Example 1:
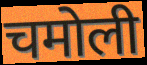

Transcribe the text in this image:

चमोली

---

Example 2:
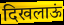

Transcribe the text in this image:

दिखलाऊं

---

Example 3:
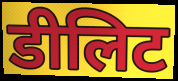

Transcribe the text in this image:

डीलिट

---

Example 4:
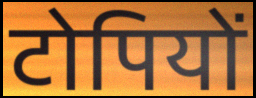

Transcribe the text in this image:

टोपियों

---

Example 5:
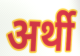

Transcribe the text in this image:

अर्थी